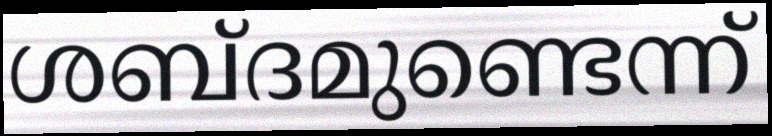
ശബ്ദമുണ്ടെന്ന്